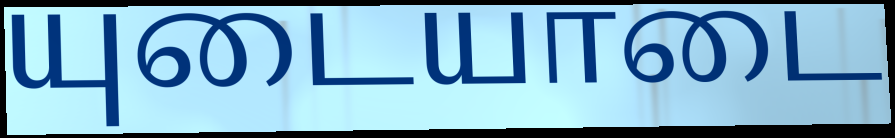
யுடையாடை